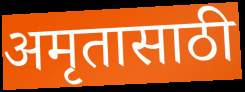
अमृतासाठी